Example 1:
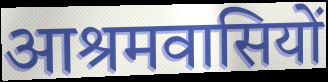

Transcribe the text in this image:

आश्रमवासियों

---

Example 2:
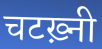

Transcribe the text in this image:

चटख़्नी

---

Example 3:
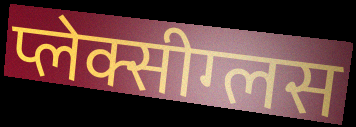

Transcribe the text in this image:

प्लेक्सीग्लस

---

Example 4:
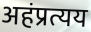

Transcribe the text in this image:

अहंप्रत्यय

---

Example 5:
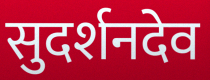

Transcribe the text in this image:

सुदर्शनदेव